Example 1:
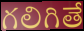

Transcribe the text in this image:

గలిగితే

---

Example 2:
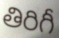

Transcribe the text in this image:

తిరిగీ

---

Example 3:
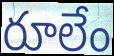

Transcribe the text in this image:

రూలేం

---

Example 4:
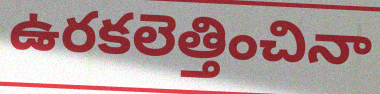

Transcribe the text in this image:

ఉరకలెత్తించినా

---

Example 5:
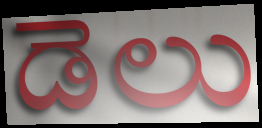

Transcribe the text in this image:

డెలు